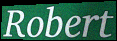
Robert